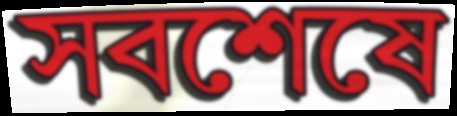
সবশেষে